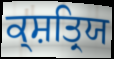
ਕ੍ਸ਼ਤ੍ਰਿਯ